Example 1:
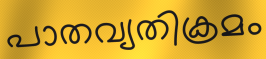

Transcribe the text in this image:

പാതവ്യതിക്രമം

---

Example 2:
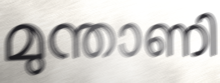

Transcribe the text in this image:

മുന്താണി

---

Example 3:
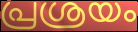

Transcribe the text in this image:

പ്രശ്രയം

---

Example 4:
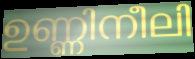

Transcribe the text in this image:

ഉണ്ണിനീലി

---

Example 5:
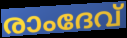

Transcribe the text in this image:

രാംദേവ്